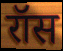
रॉस